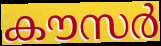
കൗസർ